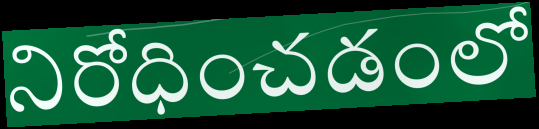
నిరోధించడంలో